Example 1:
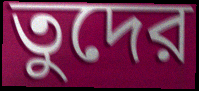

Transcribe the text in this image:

তুদের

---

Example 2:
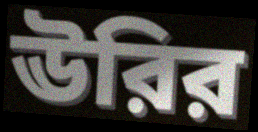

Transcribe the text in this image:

ঊরির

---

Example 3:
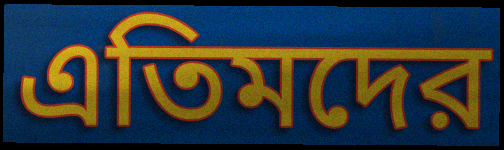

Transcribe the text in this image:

এতিমদের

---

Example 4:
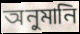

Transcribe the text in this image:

অনুমানি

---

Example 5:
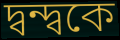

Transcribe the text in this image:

দ্বন্দ্বকে